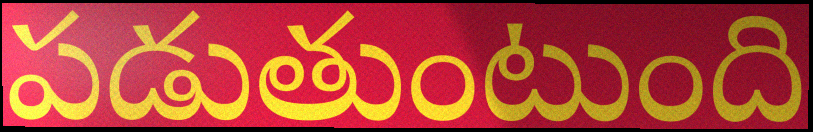
పడుతుంటుంది